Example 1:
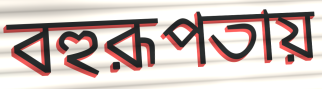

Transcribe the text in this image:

বহুরূপতায়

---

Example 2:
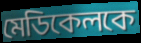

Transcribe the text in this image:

মেডিকেলকে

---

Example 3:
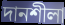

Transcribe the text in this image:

দানশীলা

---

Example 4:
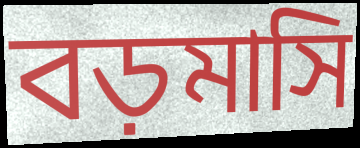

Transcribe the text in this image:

বড়মাসি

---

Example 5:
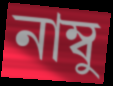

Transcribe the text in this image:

নাম্বু